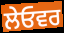
ਲੇਓਵਰ